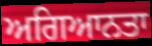
ਅਗਿਆਨਤਾ